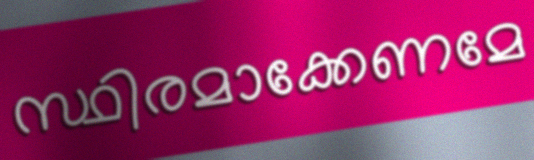
സ്ഥിരമാക്കേണമേ